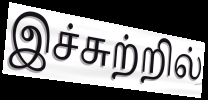
இச்சுற்றில்